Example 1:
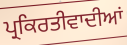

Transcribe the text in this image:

ਪ੍ਰਕਿਰਤੀਵਾਦੀਆਂ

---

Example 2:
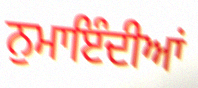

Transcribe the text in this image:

ਨੁਮਾਇੰਦੀਆਂ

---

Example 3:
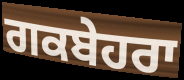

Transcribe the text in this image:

ਗਕਬੇਹਰਾ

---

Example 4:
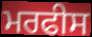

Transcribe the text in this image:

ਮਰਫੀਸ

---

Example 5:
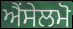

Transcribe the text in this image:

ਐਂਸੇਲਮੋ